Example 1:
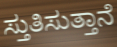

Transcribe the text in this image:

ಸ್ತುತಿಸುತ್ತಾನೆ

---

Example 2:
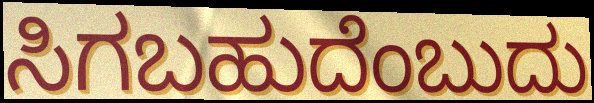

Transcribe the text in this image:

ಸಿಗಬಹುದೆಂಬುದು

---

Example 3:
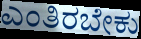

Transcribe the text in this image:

ಎಂತಿರಬೇಕು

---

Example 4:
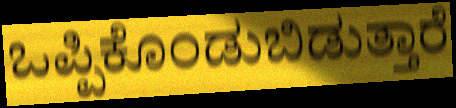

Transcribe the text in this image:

ಒಪ್ಪಿಕೊಂಡುಬಿಡುತ್ತಾರೆ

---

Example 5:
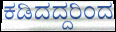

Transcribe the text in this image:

ಕಡಿದದ್ದರಿಂದ